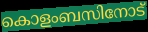
കൊളംബസിനോട്